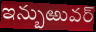
ఇన్బుఱువర్